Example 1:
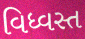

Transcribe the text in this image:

વિધ્વસ્ત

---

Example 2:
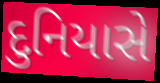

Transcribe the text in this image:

દુનિયાસે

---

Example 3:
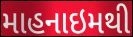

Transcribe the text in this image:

માહનાઇમથી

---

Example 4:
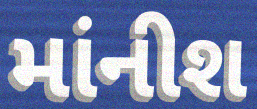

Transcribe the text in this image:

માંનીશ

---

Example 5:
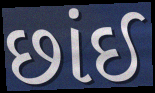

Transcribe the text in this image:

છાંઈ